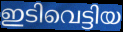
ഇടിവെട്ടിയ